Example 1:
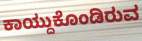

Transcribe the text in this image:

ಕಾಯ್ದುಕೊಂಡಿರುವ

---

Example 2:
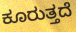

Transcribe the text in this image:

ಕೂರುತ್ತದೆ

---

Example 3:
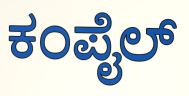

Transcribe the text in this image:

ಕಂಪೈಲ್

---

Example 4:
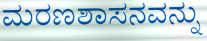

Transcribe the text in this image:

ಮರಣಶಾಸನವನ್ನು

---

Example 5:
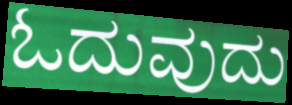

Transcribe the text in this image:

ಓದುವುದು